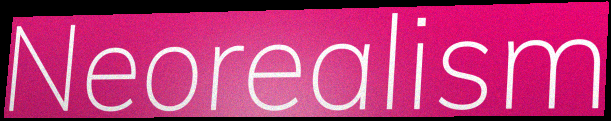
Neorealism